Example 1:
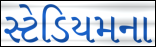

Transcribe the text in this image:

સ્ટેડિયમના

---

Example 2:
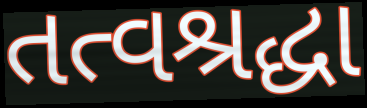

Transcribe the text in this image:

તત્વશ્રદ્ધા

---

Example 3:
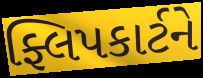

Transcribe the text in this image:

ફ્લિપકાર્ટને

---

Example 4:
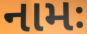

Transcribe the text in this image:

નામઃ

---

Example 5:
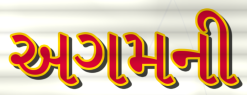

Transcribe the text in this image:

અગમની